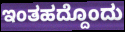
ಇಂತಹದ್ದೊಂದು